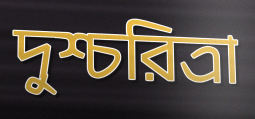
দুশ্চরিত্রা